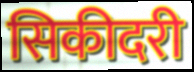
सिकीदरी